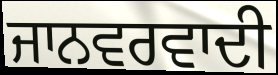
ਜਾਨਵਰਵਾਦੀ